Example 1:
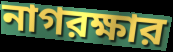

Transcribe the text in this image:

নাগরক্ষার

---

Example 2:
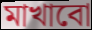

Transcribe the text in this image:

মাখাবো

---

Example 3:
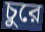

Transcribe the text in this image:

চুরে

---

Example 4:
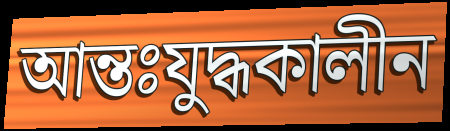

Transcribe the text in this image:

আন্তঃযুদ্ধকালীন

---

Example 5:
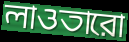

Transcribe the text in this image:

লাওতারো